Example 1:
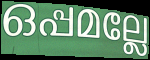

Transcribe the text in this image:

ഒപ്പമല്ലേ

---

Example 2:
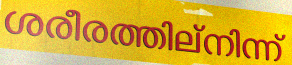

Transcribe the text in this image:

ശരീരത്തില്നിന്ന്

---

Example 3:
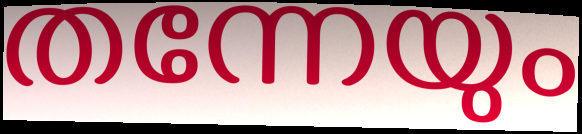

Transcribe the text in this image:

തന്നേയും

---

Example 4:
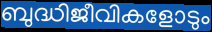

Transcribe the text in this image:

ബുദ്ധിജീവികളോടും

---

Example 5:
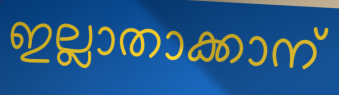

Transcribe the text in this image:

ഇല്ലാതാക്കാന്